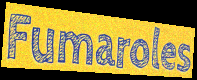
Fumaroles